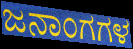
ಜನಾಂಗಗಳ